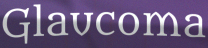
Glaucoma